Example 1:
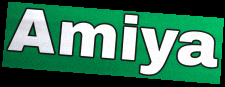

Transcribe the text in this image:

Amiya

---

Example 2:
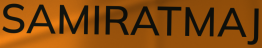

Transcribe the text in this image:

SAMIRATMAJ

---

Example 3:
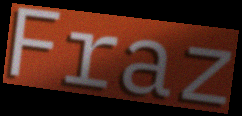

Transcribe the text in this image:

Fraz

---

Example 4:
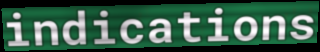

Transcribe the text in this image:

indications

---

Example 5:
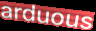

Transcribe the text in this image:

arduous